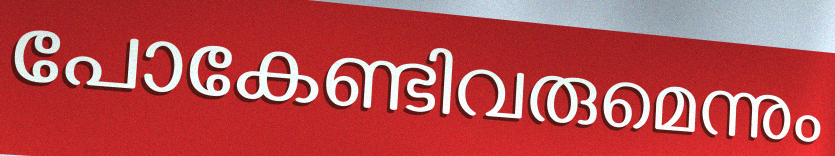
പോകേണ്ടിവരുമെന്നും